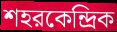
শহরকেন্দ্রিক